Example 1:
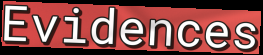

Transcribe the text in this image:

Evidences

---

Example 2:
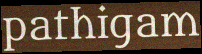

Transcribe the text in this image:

pathigam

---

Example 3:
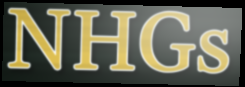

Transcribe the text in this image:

NHGs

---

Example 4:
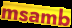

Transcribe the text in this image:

msamb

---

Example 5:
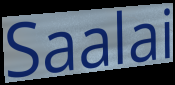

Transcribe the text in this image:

Saalai